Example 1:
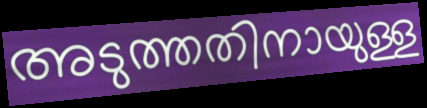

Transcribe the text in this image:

അടുത്തതിനായുള്ള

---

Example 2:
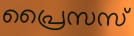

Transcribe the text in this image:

പ്രൈസസ്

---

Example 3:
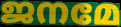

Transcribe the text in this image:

ജനമേ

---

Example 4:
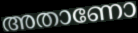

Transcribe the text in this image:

അതാണോ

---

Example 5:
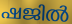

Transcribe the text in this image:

ഷജിൽ